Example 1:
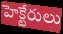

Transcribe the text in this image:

హెక్టేరులు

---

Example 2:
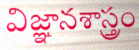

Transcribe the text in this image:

విజ్ఞానశాస్త్రం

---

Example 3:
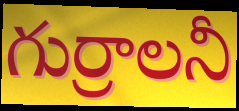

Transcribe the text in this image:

గుర్రాలనీ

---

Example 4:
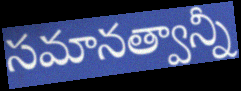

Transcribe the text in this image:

సమానత్వాన్నీ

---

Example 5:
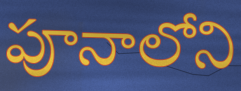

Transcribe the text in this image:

పూనాలోని